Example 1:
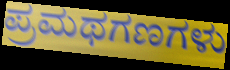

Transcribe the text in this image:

ಪ್ರಮಥಗಣಗಳು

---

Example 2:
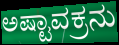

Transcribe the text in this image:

ಅಷ್ಟಾವಕ್ರನು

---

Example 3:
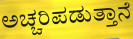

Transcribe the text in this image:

ಅಚ್ಚರಿಪಡುತ್ತಾನೆ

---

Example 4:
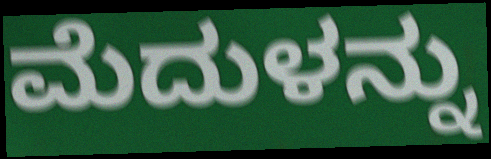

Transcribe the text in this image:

ಮೆದುಳನ್ನು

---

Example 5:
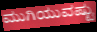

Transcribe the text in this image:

ಮುಗಿಯುವಷ್ಟು